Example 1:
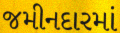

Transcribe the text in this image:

જમીનદારમાં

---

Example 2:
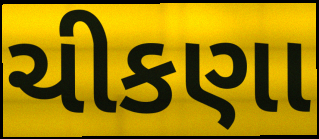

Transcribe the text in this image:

ચીકણા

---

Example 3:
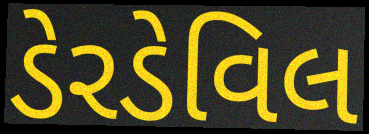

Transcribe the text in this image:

ડેરડેવિલ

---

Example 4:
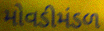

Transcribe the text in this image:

મોવડીમંડળ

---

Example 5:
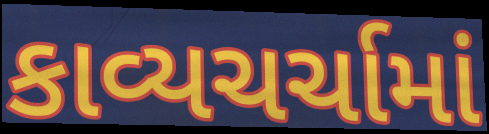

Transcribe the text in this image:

કાવ્યચર્ચામાં